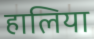
हालिया